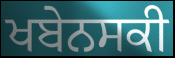
ਖਬੇਨਸਕੀ